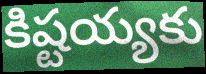
కిష్టయ్యకు